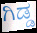
ಗಿಡ್ಡ